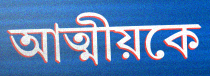
আত্মীয়কে